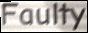
Faulty